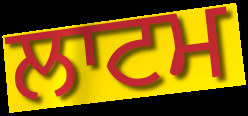
ਲਾਟਮ